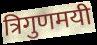
त्रिगुणमयी